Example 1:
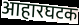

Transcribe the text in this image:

आहारघटक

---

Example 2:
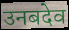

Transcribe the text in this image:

उनबदेव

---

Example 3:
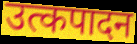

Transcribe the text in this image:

उत्कपादन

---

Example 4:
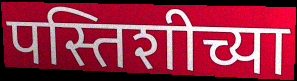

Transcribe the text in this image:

पस्तिशीच्या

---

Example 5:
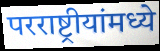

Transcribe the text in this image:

परराष्ट्रीयांमध्ये